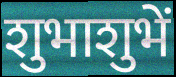
शुभाशुभें